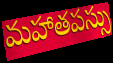
మహాతపస్సు